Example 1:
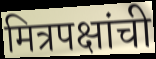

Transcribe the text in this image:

मित्रपक्षांची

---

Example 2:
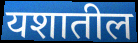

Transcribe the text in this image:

यशातील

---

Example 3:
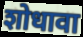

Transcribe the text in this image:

शोधावा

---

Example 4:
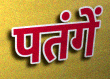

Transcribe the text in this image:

पतंगें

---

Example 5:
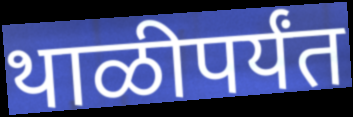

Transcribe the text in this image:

थाळीपर्यंत